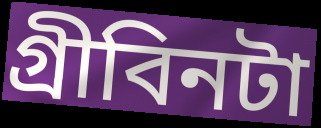
গ্রীবিনটা